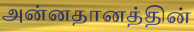
அன்னதானத்தின்